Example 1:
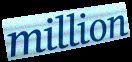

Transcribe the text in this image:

million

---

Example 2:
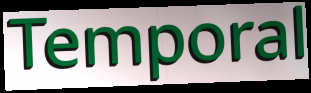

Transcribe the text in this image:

Temporal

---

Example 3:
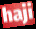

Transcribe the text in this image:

haji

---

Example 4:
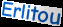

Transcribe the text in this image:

Erlitou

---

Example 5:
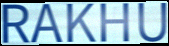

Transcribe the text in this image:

RAKHU